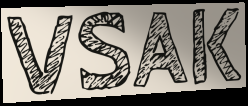
VSAK